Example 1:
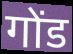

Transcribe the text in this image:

गोंड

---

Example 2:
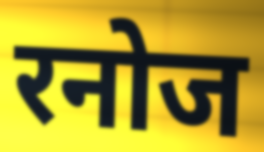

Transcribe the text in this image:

रनोज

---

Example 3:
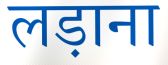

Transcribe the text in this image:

लड़ाना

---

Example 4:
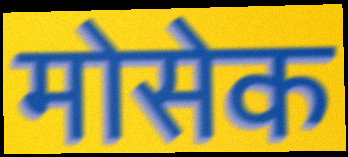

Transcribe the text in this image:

मोसेक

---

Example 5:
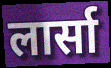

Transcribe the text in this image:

लार्सा